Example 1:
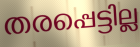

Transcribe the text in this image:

തരപ്പെട്ടില്ല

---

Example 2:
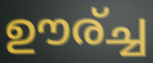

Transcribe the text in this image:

ഊര്ച്ച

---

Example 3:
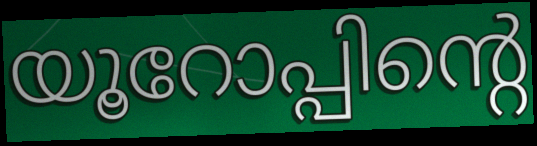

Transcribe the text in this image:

യൂറോപ്പിന്റെ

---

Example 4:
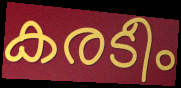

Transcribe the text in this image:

കരടീം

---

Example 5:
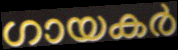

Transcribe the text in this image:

ഗായകർ